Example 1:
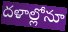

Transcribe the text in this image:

దళాల్లోనూ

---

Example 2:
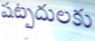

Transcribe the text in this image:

షట్పదులకు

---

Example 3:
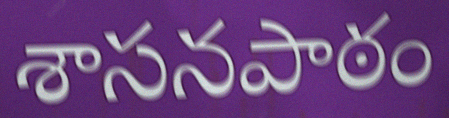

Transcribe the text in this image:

శాసనపాఠం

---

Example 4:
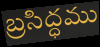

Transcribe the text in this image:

బ్రసిద్ధము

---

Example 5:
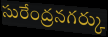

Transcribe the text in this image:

సురేంద్రనగర్కు